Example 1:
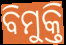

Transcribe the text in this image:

ବିମୁକ୍ତି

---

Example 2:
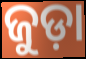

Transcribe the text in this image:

ଜୁଡ଼ା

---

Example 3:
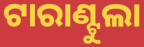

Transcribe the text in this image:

ଟାରାଣ୍ଟୁଲା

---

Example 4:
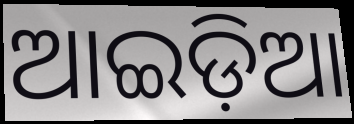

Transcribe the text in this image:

ଆଇଡ଼ିଆ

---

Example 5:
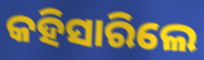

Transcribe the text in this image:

କହିସାରିଲେ